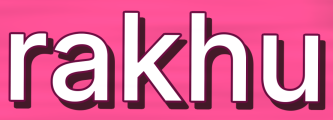
rakhu